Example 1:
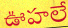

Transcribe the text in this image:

ఊహలే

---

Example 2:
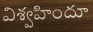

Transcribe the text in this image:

విశ్వహిందూ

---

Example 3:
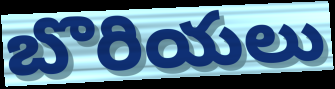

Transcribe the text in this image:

బొరియలు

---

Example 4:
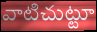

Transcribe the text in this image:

వాటిచుట్టూ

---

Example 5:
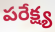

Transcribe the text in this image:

పరేక్ష్య